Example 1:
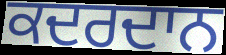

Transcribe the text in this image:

ਕਦਰਦਾਨ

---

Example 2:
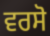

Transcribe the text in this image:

ਵਰਸੋ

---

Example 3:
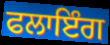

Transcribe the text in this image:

ਫਲਾਇੰਗ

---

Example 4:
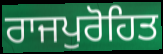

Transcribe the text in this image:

ਰਾਜਪੁਰੋਹਿਤ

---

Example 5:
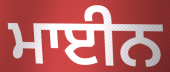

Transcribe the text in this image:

ਮਾਈਨ